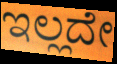
ಇಲ್ಲದೇ